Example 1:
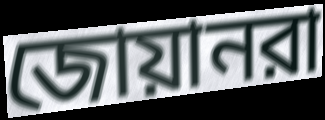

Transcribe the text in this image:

জোয়ানরা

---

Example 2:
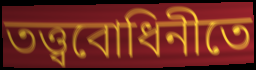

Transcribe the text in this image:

তত্ত্ববোধিনীতে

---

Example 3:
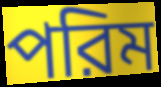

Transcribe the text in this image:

পরিম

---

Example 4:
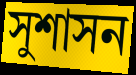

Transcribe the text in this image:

সুশাসন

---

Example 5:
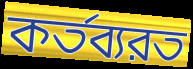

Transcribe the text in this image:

কর্তব্যরত